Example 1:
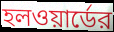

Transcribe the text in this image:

হলওয়ার্ডের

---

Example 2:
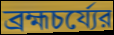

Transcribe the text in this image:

ব্রহ্মচর্য্যের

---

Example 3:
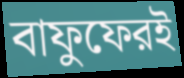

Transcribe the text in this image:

বাফুফেরই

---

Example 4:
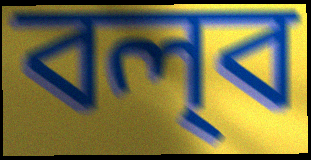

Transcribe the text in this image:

বল্‌ব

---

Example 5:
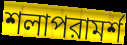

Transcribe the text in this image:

শলাপরামর্শ